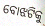
ବୋଝଟିକୁ